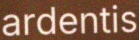
ardentis